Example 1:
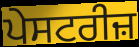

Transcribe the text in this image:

ਪੇਸਟਰੀਜ਼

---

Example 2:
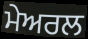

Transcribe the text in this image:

ਮੇਅਰਲ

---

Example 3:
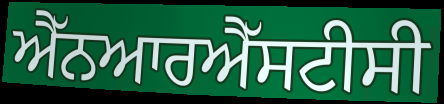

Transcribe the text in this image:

ਐੱਨਆਰਐੱਸਟੀਸੀ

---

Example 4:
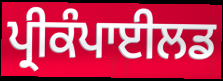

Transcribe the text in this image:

ਪ੍ਰੀਕੰਪਾਈਲਡ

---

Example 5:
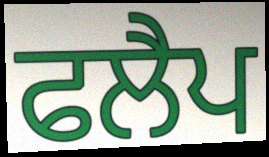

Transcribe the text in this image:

ਫਲੈਪ